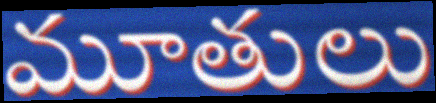
మూతులు